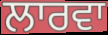
ਲਾਰਵਾ